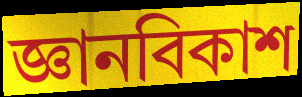
জ্ঞানবিকাশ